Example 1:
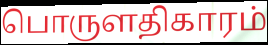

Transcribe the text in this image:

பொருளதிகாரம்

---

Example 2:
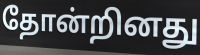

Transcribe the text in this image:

தோன்றினது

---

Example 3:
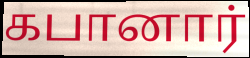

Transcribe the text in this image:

கபானார்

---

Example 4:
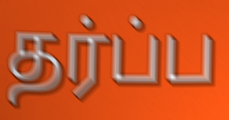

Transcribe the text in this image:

தர்ப்ப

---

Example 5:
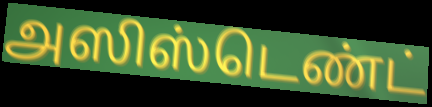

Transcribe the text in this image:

அஸிஸ்டெண்ட்